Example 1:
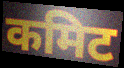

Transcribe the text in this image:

कमिट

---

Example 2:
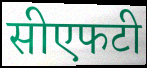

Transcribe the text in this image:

सीएफटी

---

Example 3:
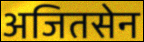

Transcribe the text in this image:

अजितसेन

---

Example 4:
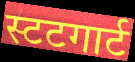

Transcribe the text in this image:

स्टटगार्ट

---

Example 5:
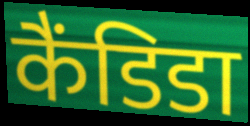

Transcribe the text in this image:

कैंडिडा